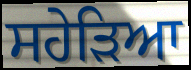
ਸਹੇੜਿਆ